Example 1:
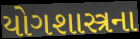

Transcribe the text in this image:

યોગશાસ્ત્રના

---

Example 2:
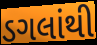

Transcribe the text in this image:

ડગલાંથી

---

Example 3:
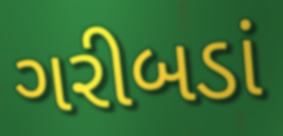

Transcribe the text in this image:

ગરીબડાં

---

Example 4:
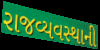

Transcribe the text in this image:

રાજવ્યવસ્થાની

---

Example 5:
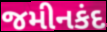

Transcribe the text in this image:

જમીનકંદ